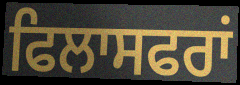
ਫਿਲਾਸਫਰਾਂ